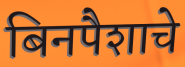
बिनपैशाचे